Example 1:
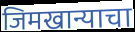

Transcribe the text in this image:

जिमखान्याचा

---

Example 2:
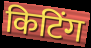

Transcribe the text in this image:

किटिंग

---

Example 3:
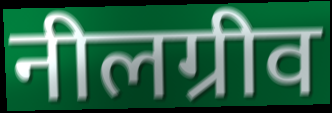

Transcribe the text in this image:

नीलग्रीव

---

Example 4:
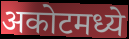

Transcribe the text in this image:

अकोटमध्ये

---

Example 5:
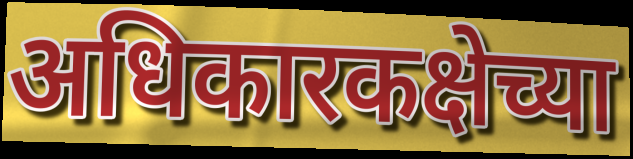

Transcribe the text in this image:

अधिकारकक्षेच्या